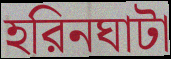
হরিনঘাটা